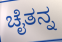
ಚೈತನ್ನ